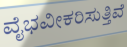
ವೈಭವೀಕರಿಸುತ್ತಿವೆ